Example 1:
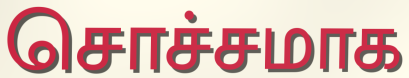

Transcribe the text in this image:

சொச்சமாக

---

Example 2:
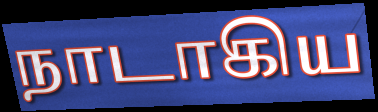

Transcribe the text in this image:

நாடாகிய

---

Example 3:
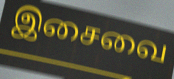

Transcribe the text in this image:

இசைவை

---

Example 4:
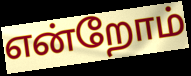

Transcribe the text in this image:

என்றோம்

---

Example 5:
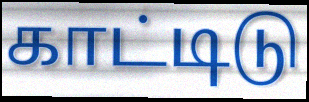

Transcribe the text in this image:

காட்டிடு